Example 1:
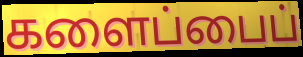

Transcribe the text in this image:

களைப்பைப்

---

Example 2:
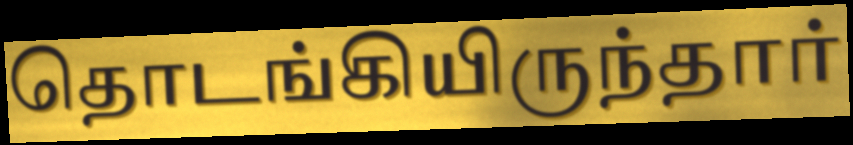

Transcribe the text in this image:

தொடங்கியிருந்தார்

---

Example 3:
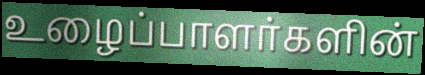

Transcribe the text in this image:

உழைப்பாளர்களின்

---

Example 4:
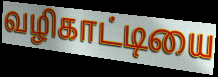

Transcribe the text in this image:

வழிகாட்டியை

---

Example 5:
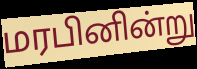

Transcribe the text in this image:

மரபினின்று